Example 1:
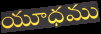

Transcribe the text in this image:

యూధము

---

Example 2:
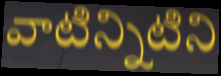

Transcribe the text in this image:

వాటిన్నిటిని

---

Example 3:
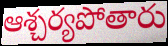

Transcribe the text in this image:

ఆశ్చర్యపోతారు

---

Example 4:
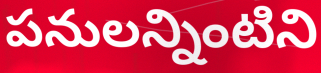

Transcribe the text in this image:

పనులన్నింటిని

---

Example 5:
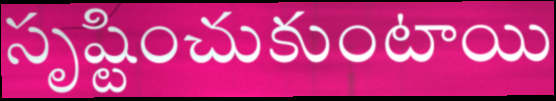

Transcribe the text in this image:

సృష్టించుకుంటాయి